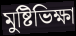
মুষ্টিভিক্ষা